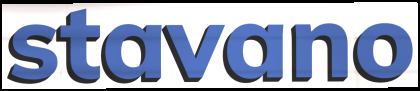
stavano